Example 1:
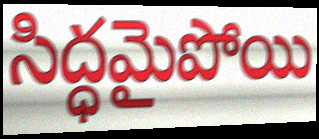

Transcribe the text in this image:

సిద్ధమైపోయి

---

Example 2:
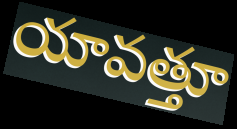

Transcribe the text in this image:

యావత్తూ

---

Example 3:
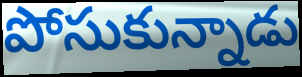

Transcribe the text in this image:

పోసుకున్నాడు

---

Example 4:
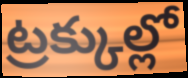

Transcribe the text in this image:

ట్రక్కుల్లో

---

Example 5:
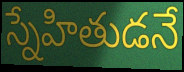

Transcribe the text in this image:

స్నేహితుడనే